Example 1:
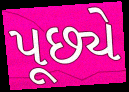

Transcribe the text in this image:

પૂછ્યે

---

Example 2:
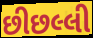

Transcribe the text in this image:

છીછલ્લી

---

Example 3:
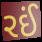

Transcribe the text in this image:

રઈં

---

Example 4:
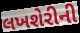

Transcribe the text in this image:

લખશેરીની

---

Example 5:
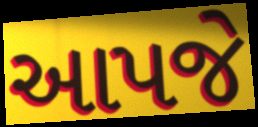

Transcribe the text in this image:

આપજે